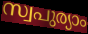
സ്വപുര്യാം